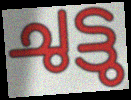
ചുട്ടു